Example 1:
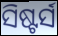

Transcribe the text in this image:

ସିଷ୍ଟର୍ସ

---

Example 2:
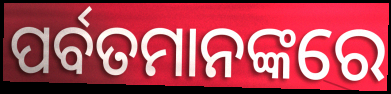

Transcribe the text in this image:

ପର୍ବତମାନଙ୍କରେ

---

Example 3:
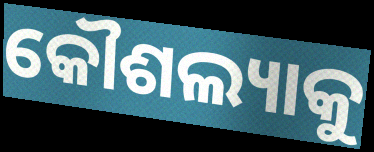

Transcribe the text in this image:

କୌଶଲ୍ୟାକୁ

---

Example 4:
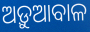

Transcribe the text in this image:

ଅଡ଼ୁଆବାଳ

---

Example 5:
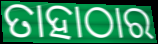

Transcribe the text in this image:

ତାହାଠାର